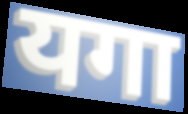
यगा